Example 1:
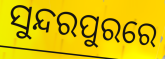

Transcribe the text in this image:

ସୁନ୍ଦରପୁରରେ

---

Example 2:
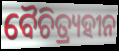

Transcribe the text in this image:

ବୈଚିତ୍ର୍ୟହୀନ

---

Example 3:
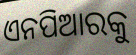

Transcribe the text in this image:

ଏନପିଆରକୁ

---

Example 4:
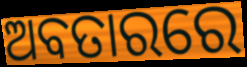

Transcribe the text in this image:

ଅବତାରରେ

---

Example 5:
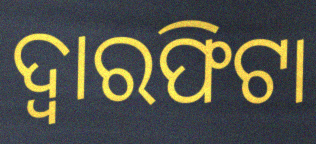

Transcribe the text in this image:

ଦ୍ୱାରଫିଟା